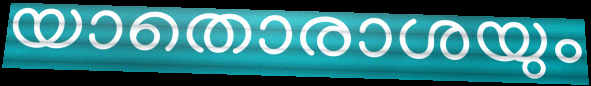
യാതൊരാശയും